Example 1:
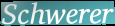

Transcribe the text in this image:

Schwerer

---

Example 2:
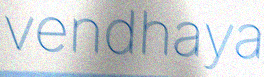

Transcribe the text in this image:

vendhaya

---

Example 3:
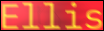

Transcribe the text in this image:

Ellis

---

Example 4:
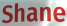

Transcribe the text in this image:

Shane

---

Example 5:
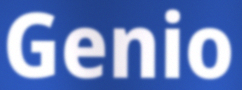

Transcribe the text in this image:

Genio